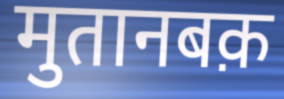
मुतानबक़